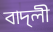
বাদ্‌লী